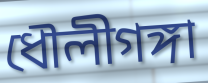
ধৌলীগঙ্গা